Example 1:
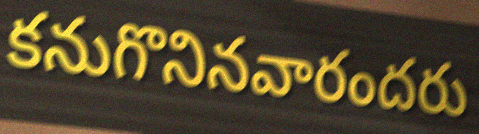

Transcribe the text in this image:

కనుగొనినవారందరు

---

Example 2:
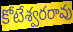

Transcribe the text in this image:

కోటేశ్వరరావు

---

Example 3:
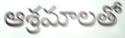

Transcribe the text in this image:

ఆశ్రమాలతో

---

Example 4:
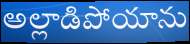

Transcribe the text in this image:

అల్లాడిపోయాను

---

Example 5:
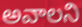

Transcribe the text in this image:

అవాలని